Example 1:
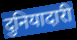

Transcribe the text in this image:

दुनियादारी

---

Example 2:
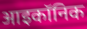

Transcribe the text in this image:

आइकॉनिक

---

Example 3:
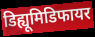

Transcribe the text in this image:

डिह्यूमिडिफायर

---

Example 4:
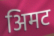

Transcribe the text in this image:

अिमट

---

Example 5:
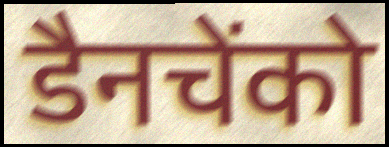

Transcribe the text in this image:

डैनचेंको